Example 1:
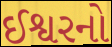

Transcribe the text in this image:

ઈશ્વરનો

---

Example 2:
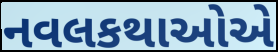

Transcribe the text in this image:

નવલકથાઓએ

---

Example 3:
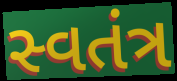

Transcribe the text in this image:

સ્વતંત્ર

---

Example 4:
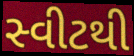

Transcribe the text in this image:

સ્વીટથી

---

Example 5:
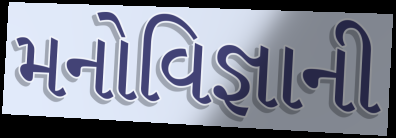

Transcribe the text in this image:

મનોવિજ્ઞાની